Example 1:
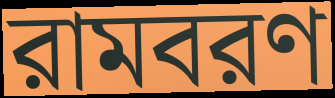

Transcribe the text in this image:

রামবরণ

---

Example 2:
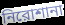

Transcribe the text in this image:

নিরোশানা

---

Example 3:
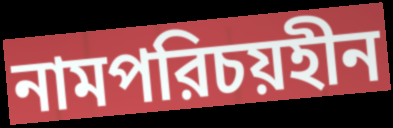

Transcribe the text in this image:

নামপরিচয়হীন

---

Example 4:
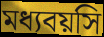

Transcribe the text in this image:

মধ্যবয়সি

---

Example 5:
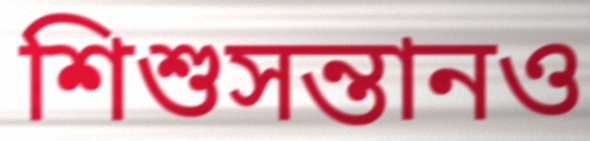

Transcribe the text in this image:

শিশুসন্তানও